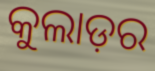
କୁଲାଡ଼ର